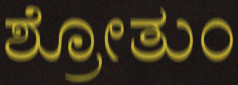
ಶ್ರೋತುಂ